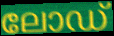
ലോഡ്